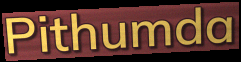
Pithumda